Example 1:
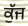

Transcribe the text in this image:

ਕੁੱਜ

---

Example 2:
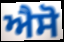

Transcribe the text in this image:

ਐਸੋ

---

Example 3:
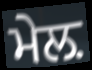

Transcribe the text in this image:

ਮੇਲ਼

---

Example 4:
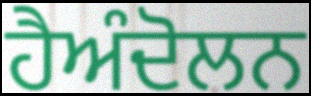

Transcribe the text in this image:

ਹੈਅੰਦੋਲਨ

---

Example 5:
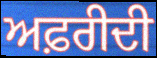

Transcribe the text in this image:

ਅਫ਼ਰੀਦੀ